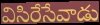
విసిరేసేవాడు